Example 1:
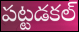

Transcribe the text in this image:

పట్టడకల్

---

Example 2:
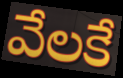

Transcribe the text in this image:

వేలకే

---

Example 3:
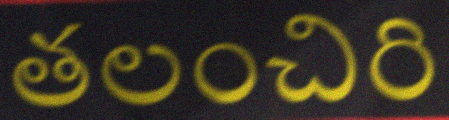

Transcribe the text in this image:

తలంచిరి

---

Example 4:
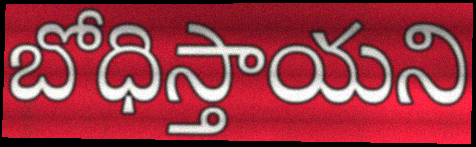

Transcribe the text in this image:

బోధిస్తాయని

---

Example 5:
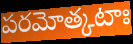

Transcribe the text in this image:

పరమోత్కటాః